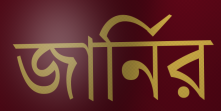
জার্নির